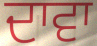
ਦਾਵਾ